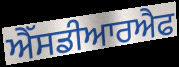
ਐੱਸਡੀਆਰਐਫ